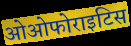
ओओफोराइटिस